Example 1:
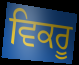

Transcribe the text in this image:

ਵਿਕਰੂ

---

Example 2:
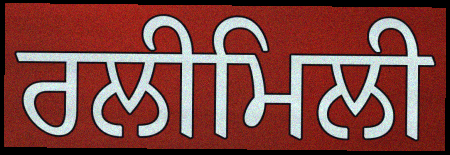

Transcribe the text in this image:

ਰਲੀਮਿਲੀ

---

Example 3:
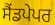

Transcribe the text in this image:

ਸੈਂਡਪੇਪਰ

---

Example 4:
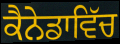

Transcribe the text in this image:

ਕੈਨੇਡਾਵਿੱਚ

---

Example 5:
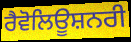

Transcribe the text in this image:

ਰੈਵੋਲਿਊਸ਼ਨਰੀ